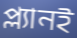
প্ল্যানই